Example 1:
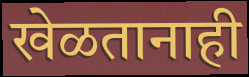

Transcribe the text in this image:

खेळतानाही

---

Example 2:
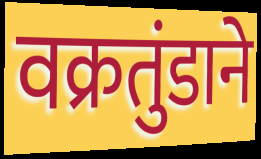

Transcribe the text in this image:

वक्रतुंडाने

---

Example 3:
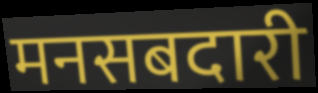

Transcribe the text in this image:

मनसबदारी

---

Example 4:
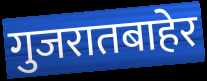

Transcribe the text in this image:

गुजरातबाहेर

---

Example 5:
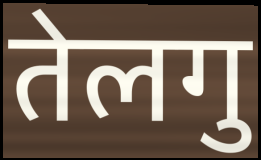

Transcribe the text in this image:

तेलगु